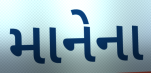
માનેના